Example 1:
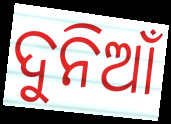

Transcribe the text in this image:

ଦୁନିଆଁ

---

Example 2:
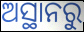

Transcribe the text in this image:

ଅସ୍ଥାନରୁ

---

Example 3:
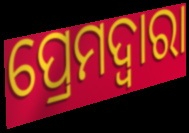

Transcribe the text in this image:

ପ୍ରେମଦ୍ୱାରା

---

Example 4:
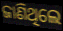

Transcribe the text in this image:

ଜାଣିଥିଲେ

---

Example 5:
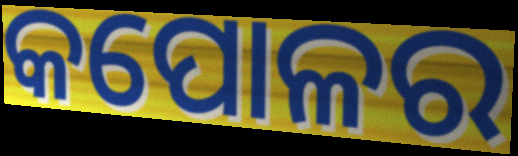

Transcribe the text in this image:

କପୋଳର